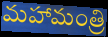
మహామంత్రి